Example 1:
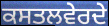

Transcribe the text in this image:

ਕਸਤਲਵੇਰਦੇ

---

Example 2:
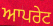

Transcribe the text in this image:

ਆਪਰੇਟ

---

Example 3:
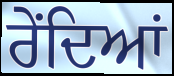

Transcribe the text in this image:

ਰੇਂਦਿਆਂ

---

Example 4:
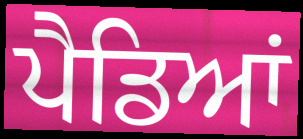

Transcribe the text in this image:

ਪੈਡਿਆਂ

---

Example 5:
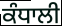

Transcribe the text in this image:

ਕੰਧਾਲੀ